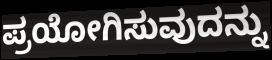
ಪ್ರಯೋಗಿಸುವುದನ್ನು